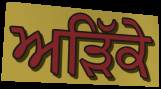
ਅੜਿੱਕੇ